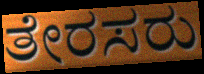
ತೇರಸರು